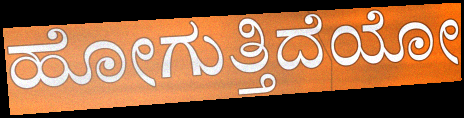
ಹೋಗುತ್ತಿದೆಯೋ